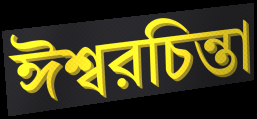
ঈশ্বরচিন্তা